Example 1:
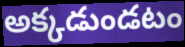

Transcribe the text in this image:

అక్కడుండటం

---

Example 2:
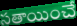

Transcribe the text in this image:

సతాయించే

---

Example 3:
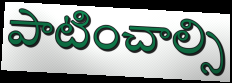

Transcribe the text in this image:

పాటించాల్సి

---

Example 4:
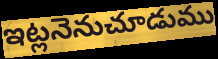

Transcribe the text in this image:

ఇట్లనెనుచూడుము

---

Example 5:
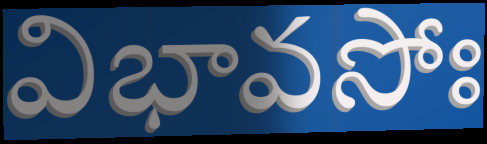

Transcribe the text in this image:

విభావసోః